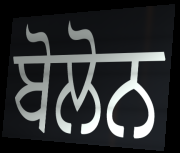
ਬੋਲੋਨ